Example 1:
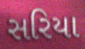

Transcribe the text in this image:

સરિયા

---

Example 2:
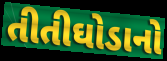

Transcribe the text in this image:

તીતીઘોડાનો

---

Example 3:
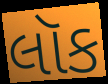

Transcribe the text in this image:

લૉક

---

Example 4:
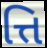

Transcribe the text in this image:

ત્તિ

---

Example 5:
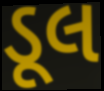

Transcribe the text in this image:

ડૂલ